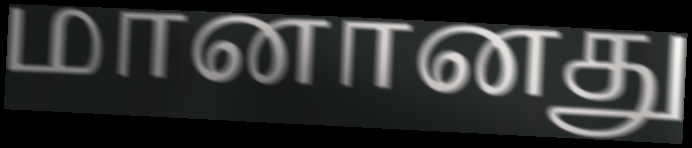
மானானது